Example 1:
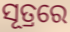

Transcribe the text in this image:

ସୂତ୍ରରେ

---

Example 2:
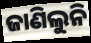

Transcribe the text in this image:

ଜାଣିଲୁନି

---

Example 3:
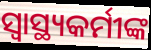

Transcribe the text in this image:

ସ୍ବାସ୍ଥ୍ୟକର୍ମୀଙ୍କ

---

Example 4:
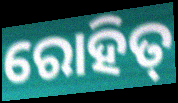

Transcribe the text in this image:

ରୋହିତ୍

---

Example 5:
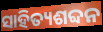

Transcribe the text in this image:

ସାହିତ୍ୟଶବ୍ଦନ